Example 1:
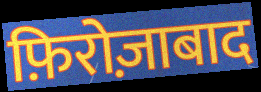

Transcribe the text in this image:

फ़िरोज़ाबाद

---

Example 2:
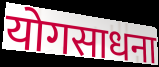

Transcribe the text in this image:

योगसाधना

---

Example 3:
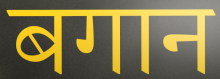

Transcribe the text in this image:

बगान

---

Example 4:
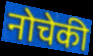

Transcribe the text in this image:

नोचेकी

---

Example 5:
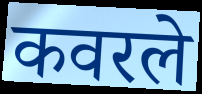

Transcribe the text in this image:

कवरले